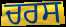
ਚਰਸ